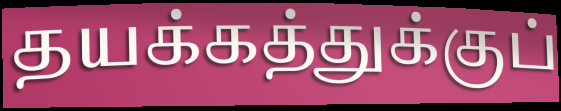
தயக்கத்துக்குப்